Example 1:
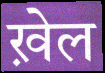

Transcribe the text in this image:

ख़ेल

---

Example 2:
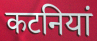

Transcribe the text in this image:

कटनियां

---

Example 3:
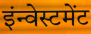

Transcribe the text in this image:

इंन्वेस्टमेंट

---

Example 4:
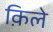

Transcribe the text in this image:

क़िले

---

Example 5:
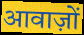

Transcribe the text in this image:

आवाज़ों